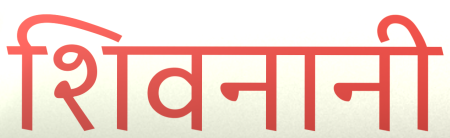
शिवनानी